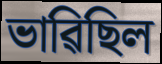
ভাৱিছিল